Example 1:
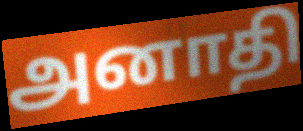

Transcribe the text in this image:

அனாதி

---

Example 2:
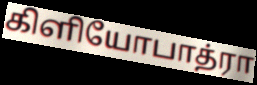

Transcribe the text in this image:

கிளியோபாத்ரா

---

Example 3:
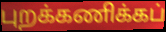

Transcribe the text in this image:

புறக்கணிக்கப்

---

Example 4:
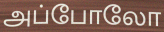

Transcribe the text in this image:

அப்போலோ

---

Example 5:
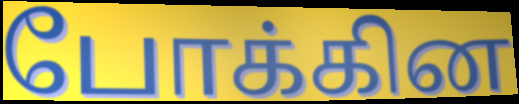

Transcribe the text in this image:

போக்கின